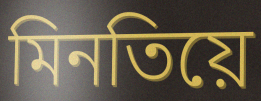
মিনতিয়ে